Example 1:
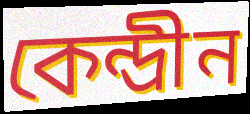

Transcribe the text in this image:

কেন্দ্রীন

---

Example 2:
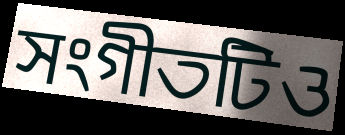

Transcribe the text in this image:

সংগীতটিও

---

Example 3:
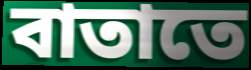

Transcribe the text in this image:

বাতাতে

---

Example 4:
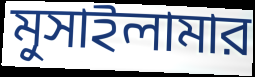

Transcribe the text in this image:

মুসাইলামার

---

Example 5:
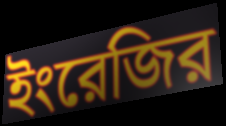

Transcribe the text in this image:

ইংরেজির